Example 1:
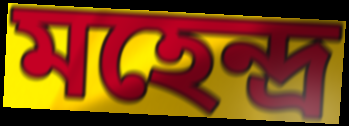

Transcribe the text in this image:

মহেন্দ্ৰ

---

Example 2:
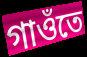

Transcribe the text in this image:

গাওঁতে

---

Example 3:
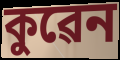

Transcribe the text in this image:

কুৱেন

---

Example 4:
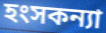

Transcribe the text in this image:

হংসকন্যা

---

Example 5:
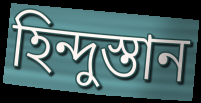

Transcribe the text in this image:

হিন্দুস্তান